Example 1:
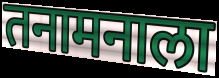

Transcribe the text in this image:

तनामनाला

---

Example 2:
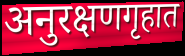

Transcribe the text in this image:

अनुरक्षणगृहात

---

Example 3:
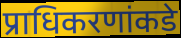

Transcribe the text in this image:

प्राधिकरणांकडे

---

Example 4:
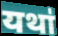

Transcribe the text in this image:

यथा॑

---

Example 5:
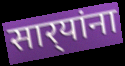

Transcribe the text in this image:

सार्‍यांना